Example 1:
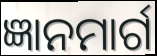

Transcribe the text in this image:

ଜ୍ଞାନମାର୍ଗ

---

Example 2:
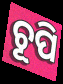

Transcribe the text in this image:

ଚୂପି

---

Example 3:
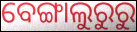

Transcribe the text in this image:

ବେଙ୍ଗାଲୁରୁରୁ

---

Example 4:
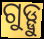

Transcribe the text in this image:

ଗୁଡ୍ଡୁ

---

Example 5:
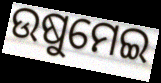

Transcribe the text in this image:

ଉଷୁମେଇ